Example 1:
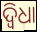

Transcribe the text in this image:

ଦ୍ୱିଧା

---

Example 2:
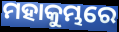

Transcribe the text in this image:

ମହାକୁମ୍ଭରେ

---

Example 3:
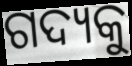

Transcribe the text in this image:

ଗଦ୍ୟକୁ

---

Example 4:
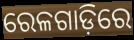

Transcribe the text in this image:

ରେଳଗାଡ଼ିରେ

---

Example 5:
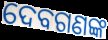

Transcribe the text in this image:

ଦେବଗଣଙ୍କ